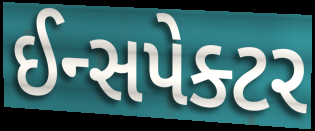
ઈન્સપેક્ટર